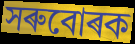
সৰুবোৰক